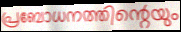
പ്രബോധനത്തിന്റെയും